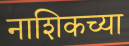
नाशिकच्या